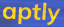
aptly